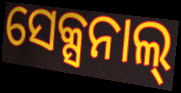
ସେକ୍ସନାଲ୍